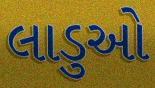
લાડુઓ